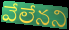
వేలేనని